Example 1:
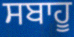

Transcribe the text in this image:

ਸਬਾਹੂ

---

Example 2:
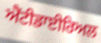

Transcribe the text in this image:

ਐਂਟੀਡਾਈਰਿਅਲ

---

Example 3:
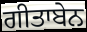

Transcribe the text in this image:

ਗੀਤਾਬੇਨ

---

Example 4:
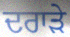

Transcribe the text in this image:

ਦਰਾੜੇ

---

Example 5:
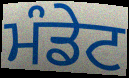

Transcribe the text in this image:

ਮੰਡੇਟ